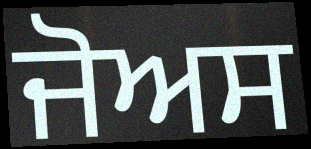
ਜੋਅਸ